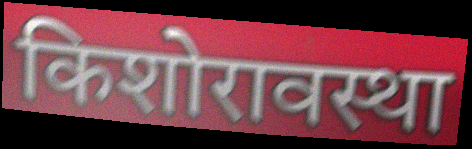
किशोरावस्था